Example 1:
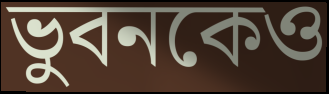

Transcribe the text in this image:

ভুবনকেও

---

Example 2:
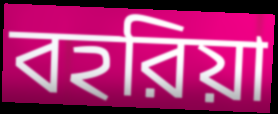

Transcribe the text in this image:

বহরিয়া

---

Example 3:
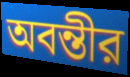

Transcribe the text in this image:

অবন্তীর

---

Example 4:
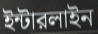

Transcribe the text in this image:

ইন্টারলাইন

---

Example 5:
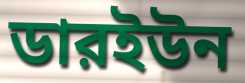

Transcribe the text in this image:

ডারইউন